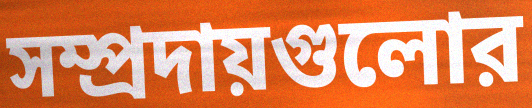
সম্প্রদায়গুলোর